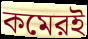
কমেরই